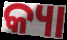
କ୍ୟା